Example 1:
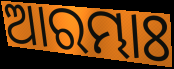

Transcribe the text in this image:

ଆରମ୍ଭାଃ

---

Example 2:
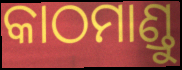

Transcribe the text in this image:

କାଠମାଣ୍ଡୁ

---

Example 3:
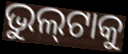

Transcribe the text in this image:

ଭୁଲ୍‍ଟାକୁ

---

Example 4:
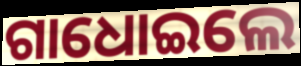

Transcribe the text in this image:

ଗାଧୋଇଲେ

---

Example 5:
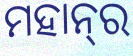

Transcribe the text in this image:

ମହାନ୍‌ର